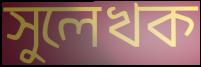
সুলেখক